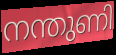
നന്തുണി